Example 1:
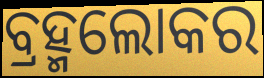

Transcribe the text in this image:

ବ୍ରହ୍ମଲୋକର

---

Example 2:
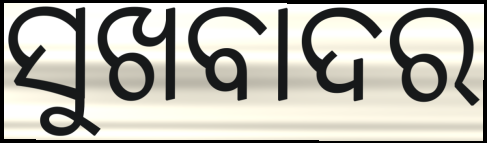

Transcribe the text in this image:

ସୁଖବାଦର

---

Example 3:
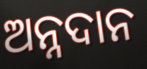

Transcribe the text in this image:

ଅନ୍ନଦାନ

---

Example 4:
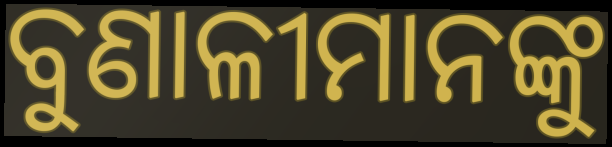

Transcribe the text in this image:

ବୁଣାଳୀମାନଙ୍କୁ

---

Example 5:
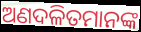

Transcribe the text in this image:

ଅଣଦଳିତମାନଙ୍କ